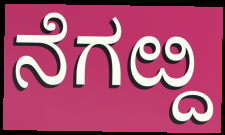
ನೆಗೞ್ದ